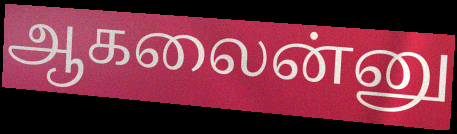
ஆகலைன்னு